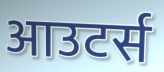
आउटर्स